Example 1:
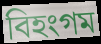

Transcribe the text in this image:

বিহংগম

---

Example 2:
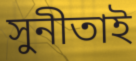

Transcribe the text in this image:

সুনীতাই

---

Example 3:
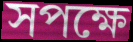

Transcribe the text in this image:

সপক্ষে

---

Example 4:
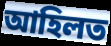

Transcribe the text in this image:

আহিলত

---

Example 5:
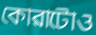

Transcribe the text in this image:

কোৱাটোও